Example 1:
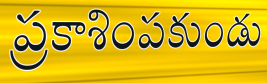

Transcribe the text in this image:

ప్రకాశింపకుండు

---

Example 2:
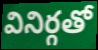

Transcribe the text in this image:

వినిర్గతో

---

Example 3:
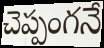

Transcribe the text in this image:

చెప్పంగనే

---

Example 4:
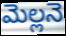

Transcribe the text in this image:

మెల్లనె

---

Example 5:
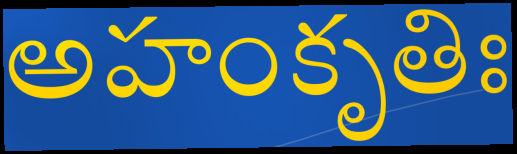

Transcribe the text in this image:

అహంకృతిః